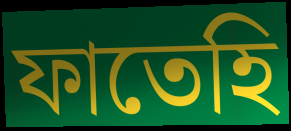
ফাতেহি